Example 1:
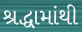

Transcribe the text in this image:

શ્રદ્ધામાંથી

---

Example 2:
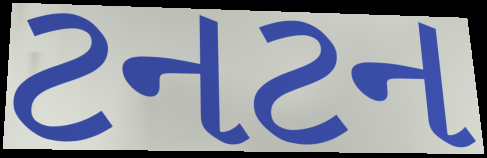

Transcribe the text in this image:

ટનટન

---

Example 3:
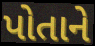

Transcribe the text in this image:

પોતાને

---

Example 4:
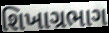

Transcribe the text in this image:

શિખાગ્રભાગ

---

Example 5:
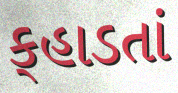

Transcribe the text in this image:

ક્‌હાડતાં